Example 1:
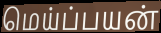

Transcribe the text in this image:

மெய்ப்பயன்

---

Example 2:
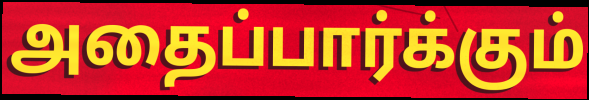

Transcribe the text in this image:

அதைப்பார்க்கும்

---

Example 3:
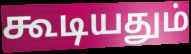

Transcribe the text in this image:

கூடியதும்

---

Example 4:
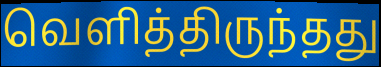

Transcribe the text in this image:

வெளித்திருந்தது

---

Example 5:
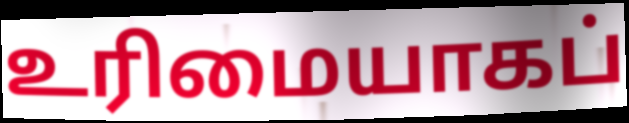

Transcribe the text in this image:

உரிமையாகப்